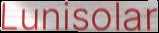
Lunisolar